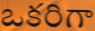
ఒకరిగా